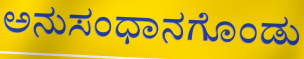
ಅನುಸಂಧಾನಗೊಂಡು